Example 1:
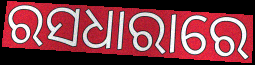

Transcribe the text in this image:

ରସଧାରାରେ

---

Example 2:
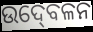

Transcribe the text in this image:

ଉଦ୍‍ବେଳନ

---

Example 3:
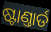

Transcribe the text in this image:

ଷ୍ଟାଣ୍ତାର୍ଡ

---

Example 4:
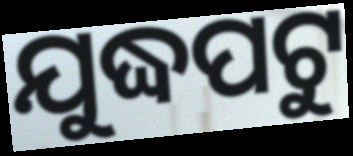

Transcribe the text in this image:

ଯୁଦ୍ଧପଟୁ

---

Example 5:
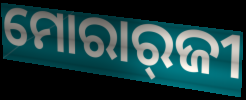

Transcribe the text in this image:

ମୋରାର୍‍ଜୀ